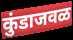
कुंडाजवळ